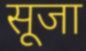
सूजा